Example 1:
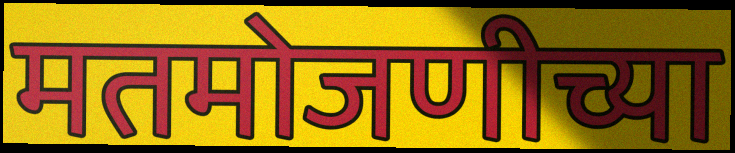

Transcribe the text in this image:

मतमोजणीच्या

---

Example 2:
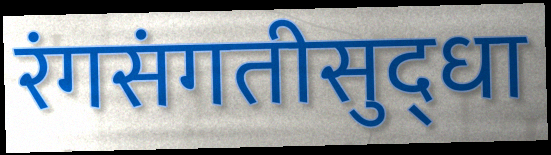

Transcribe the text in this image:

रंगसंगतीसुद्धा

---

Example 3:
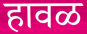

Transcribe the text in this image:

हावळ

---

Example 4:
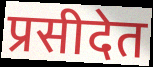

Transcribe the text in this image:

प्रसीदेत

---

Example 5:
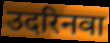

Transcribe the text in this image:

उदरिनवा